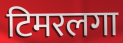
टिमरलगा